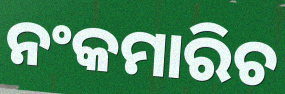
ନଂକମାରିଚ